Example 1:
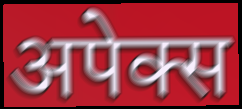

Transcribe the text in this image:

अपेक्स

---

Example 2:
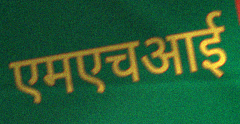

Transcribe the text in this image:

एमएचआई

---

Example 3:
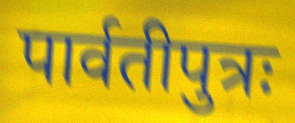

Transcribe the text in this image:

पार्वतीपुत्रः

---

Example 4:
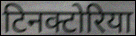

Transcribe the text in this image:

टिनक्टोरिया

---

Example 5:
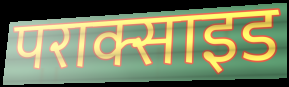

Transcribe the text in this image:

पराक्साइड